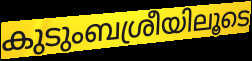
കുടുംബശ്രീയിലൂടെ